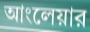
আংলেয়ার